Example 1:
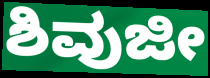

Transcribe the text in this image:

ಶಿವುಜೀ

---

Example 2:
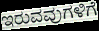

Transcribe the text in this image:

ಇರುವವುಗಳಿಗೆ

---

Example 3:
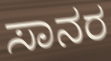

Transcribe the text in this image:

ಸಾನರ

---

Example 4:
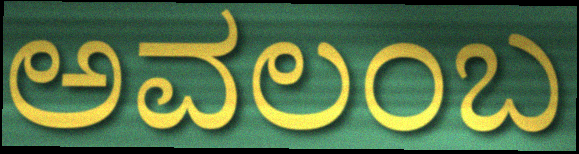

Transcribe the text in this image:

ಅವಲಂಬ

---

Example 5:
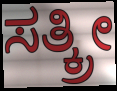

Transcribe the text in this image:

ಸತ್ಕ್ರೀ